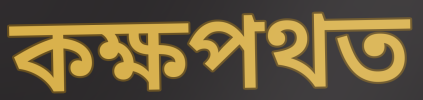
কক্ষপথত